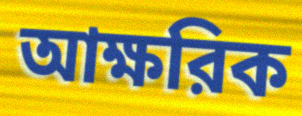
আক্ষরিক